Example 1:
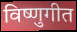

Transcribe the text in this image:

विष्णुगीत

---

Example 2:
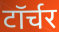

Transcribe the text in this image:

टॉर्चर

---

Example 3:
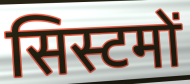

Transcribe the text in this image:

सिस्टमों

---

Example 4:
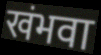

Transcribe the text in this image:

खंभवा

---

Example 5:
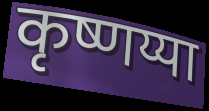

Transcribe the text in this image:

कृष्णय्या